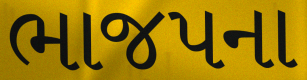
ભાજપના